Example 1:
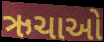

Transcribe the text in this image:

ઋચાઓ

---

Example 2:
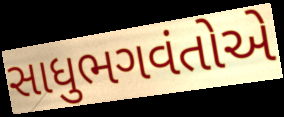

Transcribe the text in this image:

સાધુભગવંતોએ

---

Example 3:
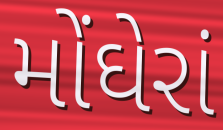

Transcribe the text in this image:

મોંઘેરાં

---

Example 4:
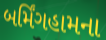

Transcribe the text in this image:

બર્મિંગહામના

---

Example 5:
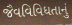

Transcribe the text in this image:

જૈવવિવિધતાનું